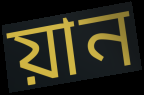
য়ান